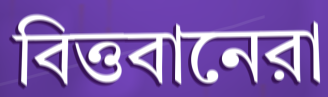
বিত্তবানেরা